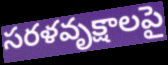
సరళవృక్షాలపై